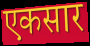
एकसार